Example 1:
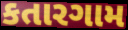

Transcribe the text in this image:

કતારગામ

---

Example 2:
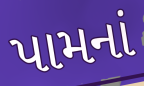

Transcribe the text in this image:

પામનાં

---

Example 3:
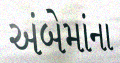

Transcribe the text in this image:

અંબેમાંના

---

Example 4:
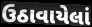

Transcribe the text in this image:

ઉઠાવાયેલાં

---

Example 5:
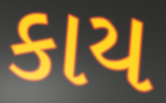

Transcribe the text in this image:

કાય